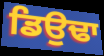
ਡਿਉਢਾ